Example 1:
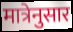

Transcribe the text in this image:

मात्रेनुसार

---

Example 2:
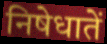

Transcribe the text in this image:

निषेधातें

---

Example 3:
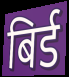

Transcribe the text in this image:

बिर्ड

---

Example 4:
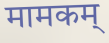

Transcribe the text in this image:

मामकम्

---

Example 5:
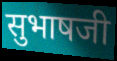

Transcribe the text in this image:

सुभाषजी